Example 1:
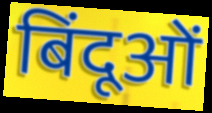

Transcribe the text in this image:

बिंदूओं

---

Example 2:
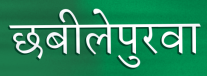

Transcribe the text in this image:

छबीलेपुरवा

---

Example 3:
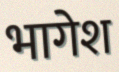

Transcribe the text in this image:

भागेश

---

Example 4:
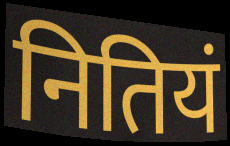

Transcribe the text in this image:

नितियं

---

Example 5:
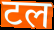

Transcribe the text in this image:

टल